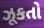
ઝૂકતો